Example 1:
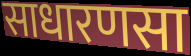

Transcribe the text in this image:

साधारणसा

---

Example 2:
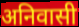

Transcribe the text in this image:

अनिवासी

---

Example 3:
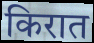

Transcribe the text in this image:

किरात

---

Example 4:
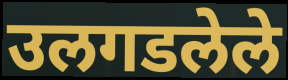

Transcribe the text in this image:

उलगडलेले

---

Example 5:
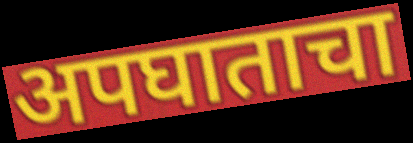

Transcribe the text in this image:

अपघाताचा